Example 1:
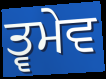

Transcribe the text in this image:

ਤ੍ਵਮੇਵ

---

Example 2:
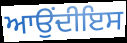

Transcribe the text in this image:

ਆਉਂਦੀਇਸ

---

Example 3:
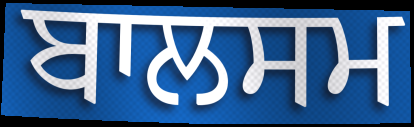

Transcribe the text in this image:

ਬਾਲਸਮ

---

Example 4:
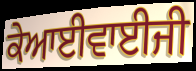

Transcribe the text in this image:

ਕੇਆਈਵਾਈਜੀ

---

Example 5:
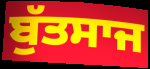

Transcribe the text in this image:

ਬੁੱਤਸਾਜ